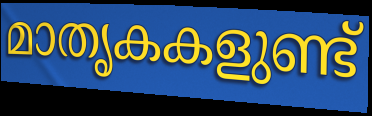
മാതൃകകളുണ്ട്